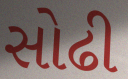
સોઢી